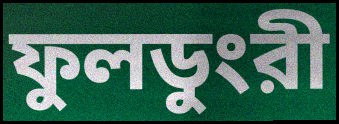
ফুলডুংরী